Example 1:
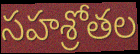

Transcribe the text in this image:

సహశ్రోతల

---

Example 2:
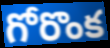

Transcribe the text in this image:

గోరొంక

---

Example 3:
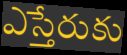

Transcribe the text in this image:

ఎస్తేరుకు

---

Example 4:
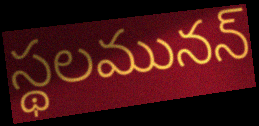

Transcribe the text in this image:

స్థలమునన్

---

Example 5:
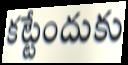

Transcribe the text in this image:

కట్టేందుకు